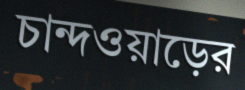
চান্দওয়াড়ের